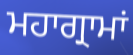
ਮਹਾਗ੍ਰਾਮਾਂ